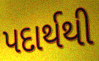
પદાર્થથી